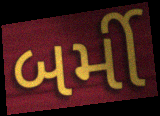
બર્મી